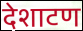
देशाटण